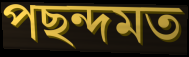
পছন্দমত